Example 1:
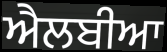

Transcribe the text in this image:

ਐਲਬੀਆ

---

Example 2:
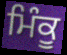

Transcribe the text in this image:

ਮਿੰਕੂ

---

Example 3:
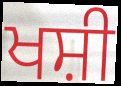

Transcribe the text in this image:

ਖਸ਼ੀ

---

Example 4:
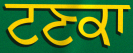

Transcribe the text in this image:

ਟਣਕਾ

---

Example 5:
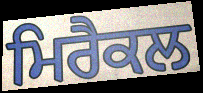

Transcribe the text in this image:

ਮਿਰੈਕਲ